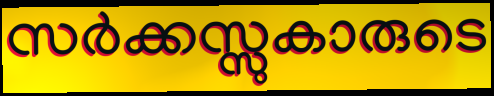
സർക്കസ്സുകാരുടെ